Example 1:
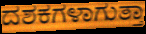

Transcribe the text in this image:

ದಶಕಗಳಾಗುತ್ತಾ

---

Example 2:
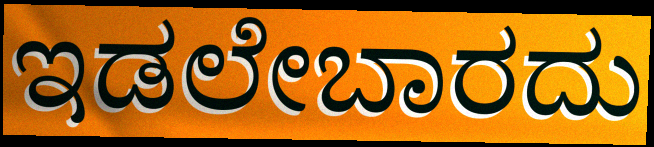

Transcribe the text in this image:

ಇಡಲೇಬಾರದು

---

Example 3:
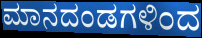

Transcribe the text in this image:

ಮಾನದಂಡಗಳಿಂದ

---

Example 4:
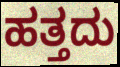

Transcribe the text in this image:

ಹತ್ತದು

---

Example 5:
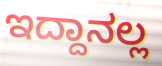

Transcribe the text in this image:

ಇದ್ದಾನಲ್ಲ